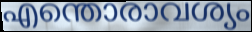
എന്തൊരാവശ്യം